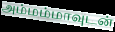
அம்மம்மாவுடன்